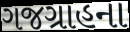
ગજગ્રાહના